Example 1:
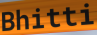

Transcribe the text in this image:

Bhitti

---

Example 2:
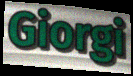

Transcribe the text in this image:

Giorgi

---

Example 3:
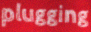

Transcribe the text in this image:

plugging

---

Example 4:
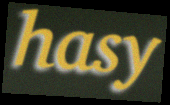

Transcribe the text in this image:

hasy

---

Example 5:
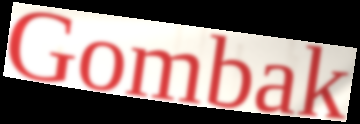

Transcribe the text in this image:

Gombak